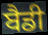
ਬੈਡੀ